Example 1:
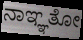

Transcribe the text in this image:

ನಾಞ್ಞತೋ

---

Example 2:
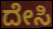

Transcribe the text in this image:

ದೇಸಿ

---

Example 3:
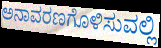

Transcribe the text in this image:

ಅನಾವರಣಗೊಳಿಸುವಲ್ಲಿ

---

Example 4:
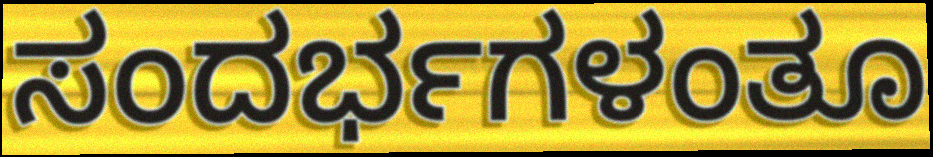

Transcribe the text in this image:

ಸಂದರ್ಭಗಳಂತೂ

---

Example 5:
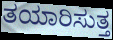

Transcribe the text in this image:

ತಯಾರಿಸುತ್ತ